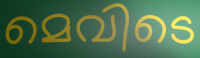
മെവിടെ